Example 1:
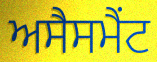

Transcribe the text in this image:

ਅਸੈਸਮੈਂਟ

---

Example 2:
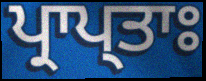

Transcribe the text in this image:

ਪ੍ਰਾਪ੍ਤਾਃ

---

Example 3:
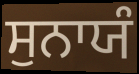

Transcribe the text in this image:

ਸੁਨਾਯੰ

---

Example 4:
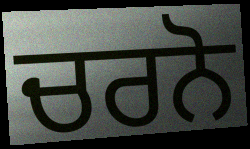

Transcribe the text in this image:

ਚਰਨੋ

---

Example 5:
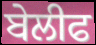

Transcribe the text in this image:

ਬੇਲੀਫ